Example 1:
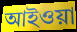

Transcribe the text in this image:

আইওয়া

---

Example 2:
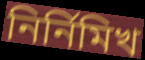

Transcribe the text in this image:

নির্নিমিখ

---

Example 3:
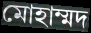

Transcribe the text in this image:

মোহাম্মদ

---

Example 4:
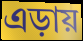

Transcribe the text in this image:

এড়ায়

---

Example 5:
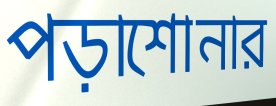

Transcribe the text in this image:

পড়াশোনার